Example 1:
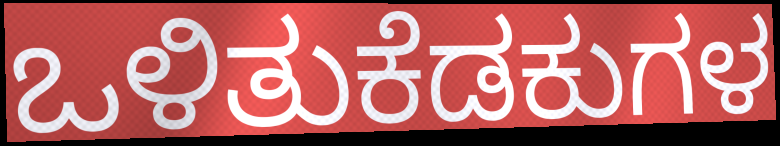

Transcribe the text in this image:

ಒಳಿತುಕೆಡಕುಗಳ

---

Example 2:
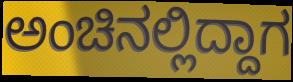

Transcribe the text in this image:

ಅಂಚಿನಲ್ಲಿದ್ದಾಗ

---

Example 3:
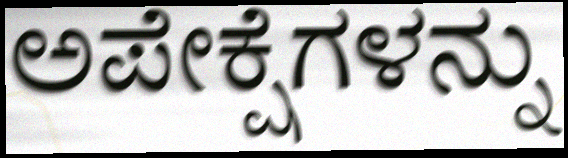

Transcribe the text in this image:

ಅಪೇಕ್ಷೆಗಳನ್ನು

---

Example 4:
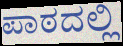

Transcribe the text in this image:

ಪಾಠದಲ್ಲಿ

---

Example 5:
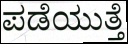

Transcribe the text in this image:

ಪಡೆಯುತ್ತೆ